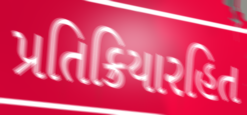
પ્રતિક્રિયારહિત